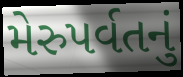
મેરુપર્વતનું